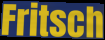
Fritsch